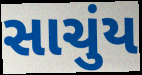
સાચુંય